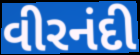
વીરનંદી